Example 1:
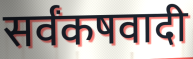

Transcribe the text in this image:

सर्वंकषवादी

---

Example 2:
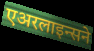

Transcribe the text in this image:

एअरलाइन्सने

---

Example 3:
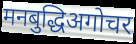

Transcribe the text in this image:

मनबुद्धिअगोचर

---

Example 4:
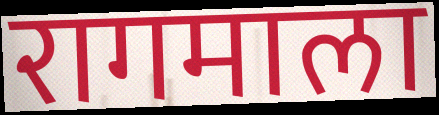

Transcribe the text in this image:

रागमाला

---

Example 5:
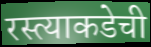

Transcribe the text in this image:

रस्त्याकडेची